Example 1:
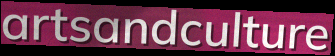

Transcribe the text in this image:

artsandculture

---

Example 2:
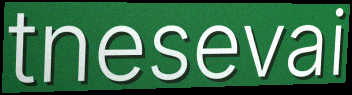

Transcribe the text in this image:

tnesevai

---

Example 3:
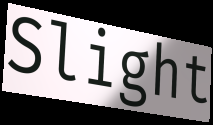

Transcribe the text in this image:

Slight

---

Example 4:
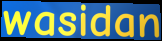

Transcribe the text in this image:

wasidan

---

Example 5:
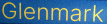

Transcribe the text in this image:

Glenmark